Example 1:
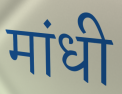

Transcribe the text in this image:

मांधी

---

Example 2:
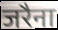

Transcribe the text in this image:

जरैना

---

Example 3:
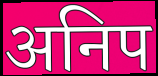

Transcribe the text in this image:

अनिप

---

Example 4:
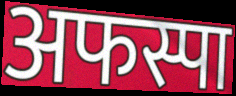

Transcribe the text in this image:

अफस्पा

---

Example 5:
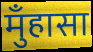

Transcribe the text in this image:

मुँहासा